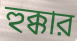
হুক্কার